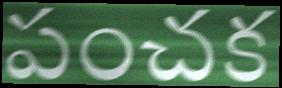
పంచక